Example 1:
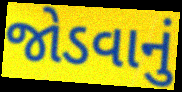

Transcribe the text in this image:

જોડવાનું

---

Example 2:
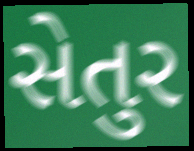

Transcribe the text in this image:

સેતુર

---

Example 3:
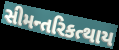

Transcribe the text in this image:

સીમન્તરિકત્થાય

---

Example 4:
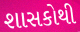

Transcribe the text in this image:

શાસકોથી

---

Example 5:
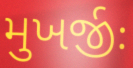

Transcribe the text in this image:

મુખર્જીઃ